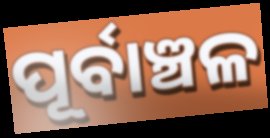
ପୂର୍ବାଞ୍ଚଳ